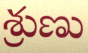
శ్రుణు